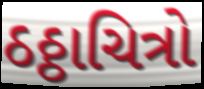
ઠઠ્ઠાચિત્રો